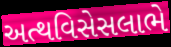
અત્થવિસેસલાભે